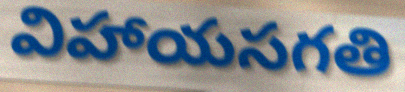
విహాయసగతి